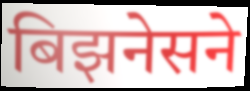
बिझनेसने